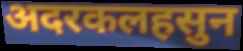
अदरकलहसुन